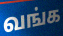
வங்க